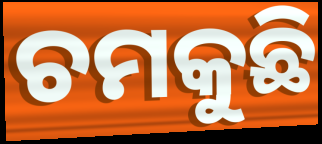
ଚମକୁଛି